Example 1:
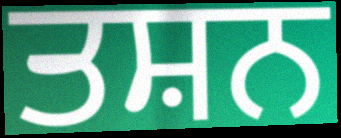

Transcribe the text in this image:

ਤਸ਼ਨ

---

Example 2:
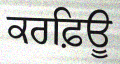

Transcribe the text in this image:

ਕਰਫ਼ਿਊ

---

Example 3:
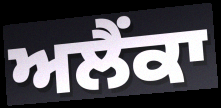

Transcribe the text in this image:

ਅਲੈਂਕਾ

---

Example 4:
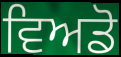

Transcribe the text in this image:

ਵਿਅਡੋ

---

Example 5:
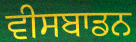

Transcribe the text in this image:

ਵੀਸਬਾਡਨ